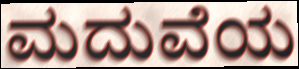
ಮದುವೆಯ